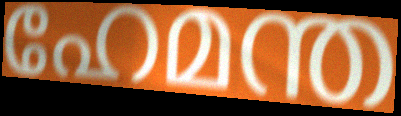
ഹേമന്ത